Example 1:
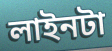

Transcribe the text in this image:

লাইনটা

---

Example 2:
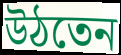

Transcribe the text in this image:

উঠতেন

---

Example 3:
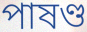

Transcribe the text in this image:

পাষণ্ড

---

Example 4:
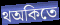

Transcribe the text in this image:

থঅকিতে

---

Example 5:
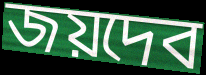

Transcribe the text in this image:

জয়দেব